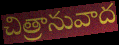
చిత్రానువాద